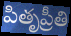
పితృప్రీతి